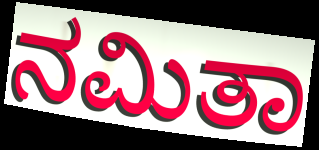
ನಮಿತಾ